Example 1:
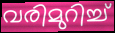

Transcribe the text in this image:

വരിമുറിച്ച്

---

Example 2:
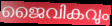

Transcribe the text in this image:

ജൈവികവും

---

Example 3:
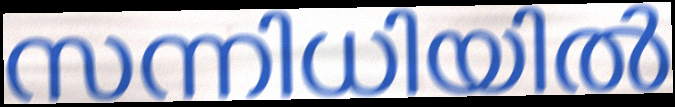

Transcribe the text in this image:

സന്നിധിയിൽ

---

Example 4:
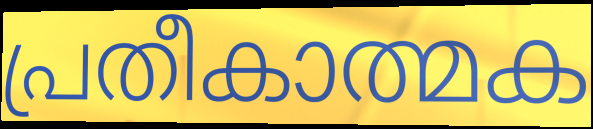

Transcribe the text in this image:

പ്രതീകാത്മക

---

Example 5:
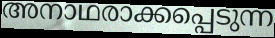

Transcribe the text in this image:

അനാഥരാക്കപ്പെടുന്ന